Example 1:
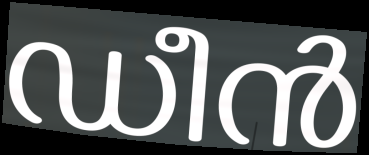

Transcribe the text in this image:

ഡീൻ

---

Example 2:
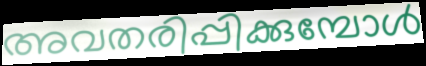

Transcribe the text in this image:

അവതരിപ്പിക്കുമ്പോൾ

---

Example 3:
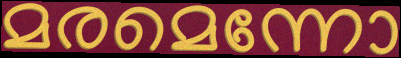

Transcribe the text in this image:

മരമെന്നോ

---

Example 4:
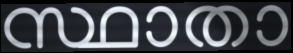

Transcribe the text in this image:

സ്ഥാതാ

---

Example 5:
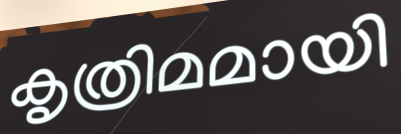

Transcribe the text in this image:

കൃത്രിമമായി